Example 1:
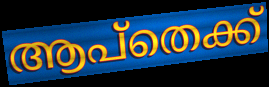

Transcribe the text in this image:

ആപ്തെക്ക്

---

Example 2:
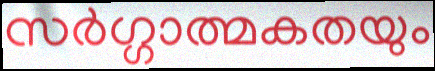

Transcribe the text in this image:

സർഗ്ഗാത്മകതയും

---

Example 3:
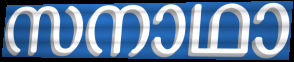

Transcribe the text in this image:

സനാഥാ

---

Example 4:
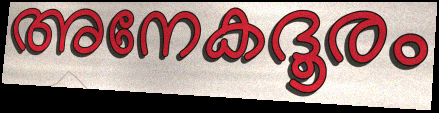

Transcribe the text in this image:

അനേകദൂരം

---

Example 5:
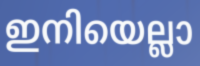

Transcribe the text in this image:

ഇനിയെല്ലാ